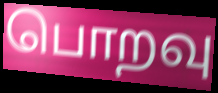
பொறவு